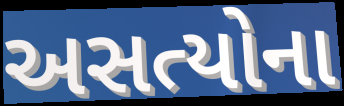
અસત્યોના